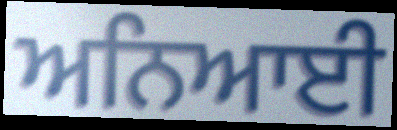
ਅਨਿਆਈ